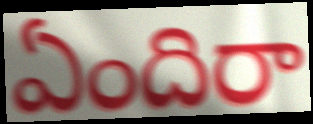
ఏందిరా